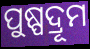
ପୁଷ୍ପଦ୍ରୂମ